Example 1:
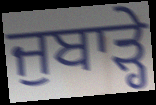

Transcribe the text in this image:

ਜੁਬਾੜ੍ਹੇ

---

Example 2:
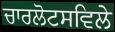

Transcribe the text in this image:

ਚਾਰਲੋਟਸਵਿਲੇ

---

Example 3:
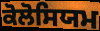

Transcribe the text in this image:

ਕੋਲੋਸਿਯਮ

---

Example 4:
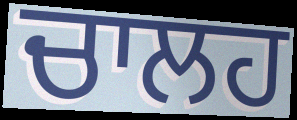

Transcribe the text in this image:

ਚਾਲਹ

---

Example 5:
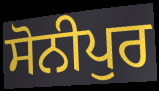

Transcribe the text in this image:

ਸੋਨੀਪੁਰ